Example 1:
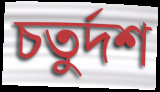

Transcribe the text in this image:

চতুৰ্দশ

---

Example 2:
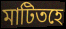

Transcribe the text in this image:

মাটিতহে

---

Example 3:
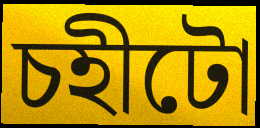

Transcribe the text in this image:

চহীটো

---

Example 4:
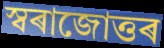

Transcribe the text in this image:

স্বৰাজোত্তৰ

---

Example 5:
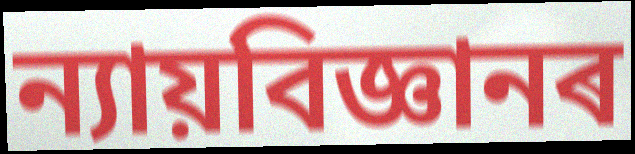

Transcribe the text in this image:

ন্যায়বিজ্ঞানৰ